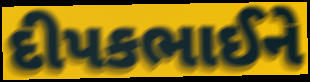
દીપકભાઈને